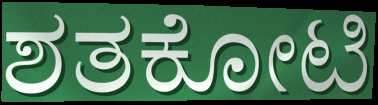
ಶತಕೋಟಿ